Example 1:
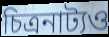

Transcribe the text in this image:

চিত্রনাট্যও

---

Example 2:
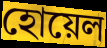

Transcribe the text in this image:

হোয়েল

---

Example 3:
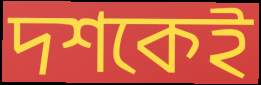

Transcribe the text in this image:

দশকেই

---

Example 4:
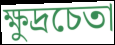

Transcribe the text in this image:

ক্ষুদ্রচেতা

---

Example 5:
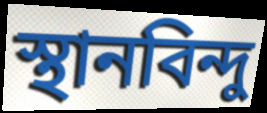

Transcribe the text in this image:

স্থানবিন্দু